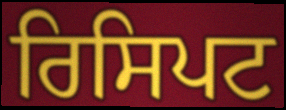
ਰਿਸਿਪਟ